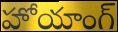
హోయాంగ్